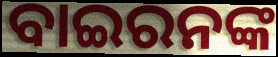
ବାଇରନଙ୍କ